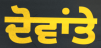
ਦੋਵਾਂਤੇ